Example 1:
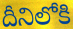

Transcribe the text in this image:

దీనిలోకి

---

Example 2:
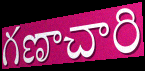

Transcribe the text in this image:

గణాచారి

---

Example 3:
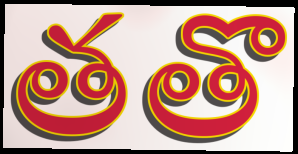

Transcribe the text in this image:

తతొ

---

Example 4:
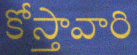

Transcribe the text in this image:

కోస్తావారి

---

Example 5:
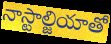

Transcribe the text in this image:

నాస్టాల్జియాతో